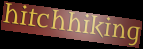
hitchhiking